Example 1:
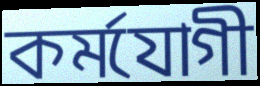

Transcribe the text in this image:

কর্মযোগী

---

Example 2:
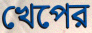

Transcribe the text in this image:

খেপের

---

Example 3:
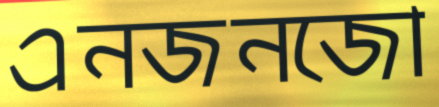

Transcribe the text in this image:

এনজনজো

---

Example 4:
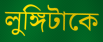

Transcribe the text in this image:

লুঙ্গিটাকে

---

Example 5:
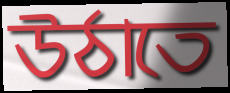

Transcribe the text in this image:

উঠাতে